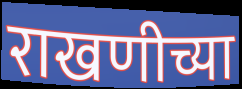
राखणीच्या